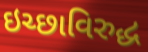
ઇચ્છાવિરુદ્ધ